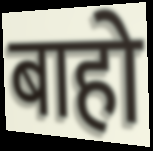
बाहो